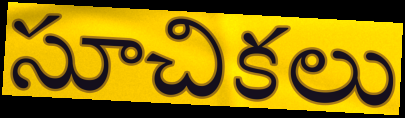
సూచికలు